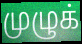
முழுக்